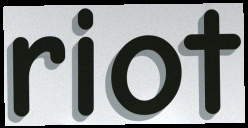
riot